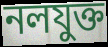
নলযুক্ত